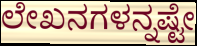
ಲೇಖನಗಳನ್ನಷ್ಟೇ